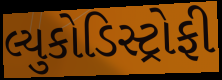
લ્યુકોડિસ્ટ્રોફી